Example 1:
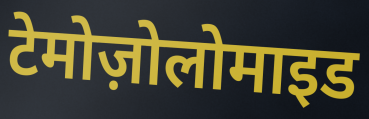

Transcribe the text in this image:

टेमोज़ोलोमाइड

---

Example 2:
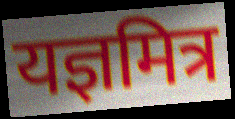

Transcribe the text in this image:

यज्ञमित्र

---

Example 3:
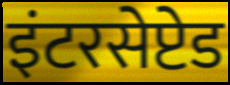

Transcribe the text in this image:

इंटरसेप्टेड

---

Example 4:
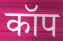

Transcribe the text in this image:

कॉप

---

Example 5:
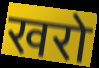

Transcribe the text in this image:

खरो